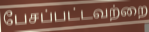
பேசப்பட்டவற்றை